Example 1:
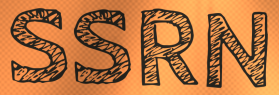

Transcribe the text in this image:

SSRN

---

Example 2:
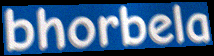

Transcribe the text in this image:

bhorbela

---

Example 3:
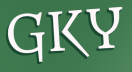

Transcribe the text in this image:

GKY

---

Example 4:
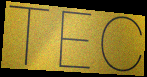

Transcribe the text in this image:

TEC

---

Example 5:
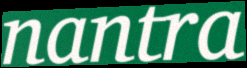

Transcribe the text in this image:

nantra